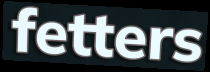
fetters